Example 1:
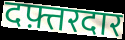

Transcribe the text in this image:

दफ़्तरदार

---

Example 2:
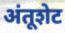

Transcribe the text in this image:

अंतूशेट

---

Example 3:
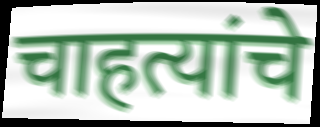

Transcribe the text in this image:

चाहत्यांचे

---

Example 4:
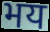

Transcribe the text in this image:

भय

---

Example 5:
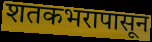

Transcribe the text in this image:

शतकभरापासून